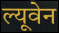
ल्यूवेन